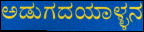
ಅಡುಗದಯಾಳ್ಳನ